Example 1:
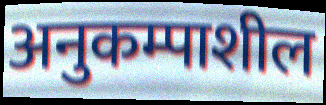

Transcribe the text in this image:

अनुकम्पाशील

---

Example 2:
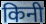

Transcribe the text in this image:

किनी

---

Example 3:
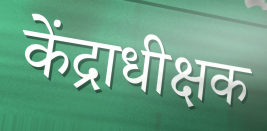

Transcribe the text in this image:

केंद्राधीक्षक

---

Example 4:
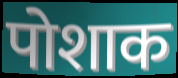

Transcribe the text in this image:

पोशाक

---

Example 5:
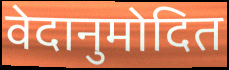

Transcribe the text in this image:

वेदानुमोदित